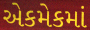
એકમેકમાં